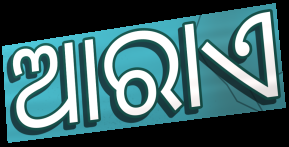
ଆରାଏ